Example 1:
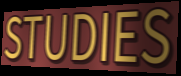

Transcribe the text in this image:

STUDIES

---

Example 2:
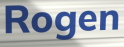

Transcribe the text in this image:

Rogen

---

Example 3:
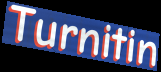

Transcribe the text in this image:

Turnitin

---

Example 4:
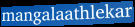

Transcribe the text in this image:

mangalaathlekar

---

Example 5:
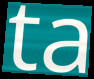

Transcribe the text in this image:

ta